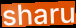
sharu